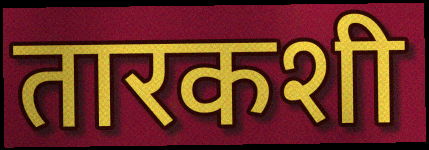
तारकशी